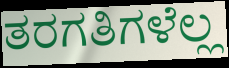
ತರಗತಿಗಳೆಲ್ಲ